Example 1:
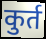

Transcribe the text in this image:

कुर्त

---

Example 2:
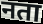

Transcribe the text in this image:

नता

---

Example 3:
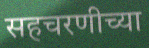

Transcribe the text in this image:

सहचरणीच्या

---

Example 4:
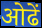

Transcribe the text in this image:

ओढें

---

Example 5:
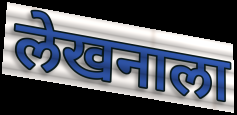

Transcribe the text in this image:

लेखनाला